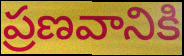
ప్రణవానికి